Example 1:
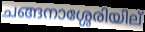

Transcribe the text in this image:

ചങ്ങനാശ്ശേരിയില്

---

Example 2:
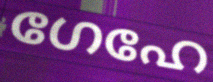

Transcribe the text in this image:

ഗേഹേ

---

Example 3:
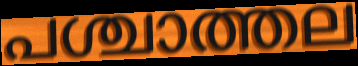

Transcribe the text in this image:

പശ്ചാത്തല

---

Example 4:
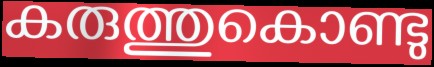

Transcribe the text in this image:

കരുത്തുകൊണ്ടു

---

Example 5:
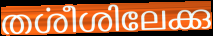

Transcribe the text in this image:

തൎശീശിലേക്കു